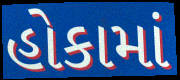
હોકામાં